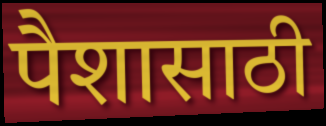
पैशासाठी